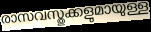
രാസവസ്തുക്കളുമായുള്ള